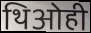
थिओही